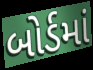
બોર્ડમાં